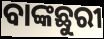
ବାଙ୍କଛୁରୀ